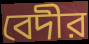
বেদীর